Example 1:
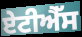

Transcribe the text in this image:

ਏਟੀਐੱਸ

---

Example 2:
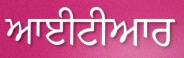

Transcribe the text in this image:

ਆਈਟੀਆਰ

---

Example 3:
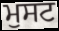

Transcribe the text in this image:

ਮੁਸਟ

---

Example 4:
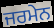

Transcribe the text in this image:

ਜਰਮੇਨ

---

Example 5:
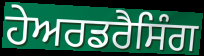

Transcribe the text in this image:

ਹੇਅਰਡਰੈਸਿੰਗ